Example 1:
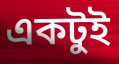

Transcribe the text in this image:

একটুই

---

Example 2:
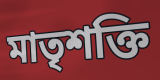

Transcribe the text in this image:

মাতৃশক্তি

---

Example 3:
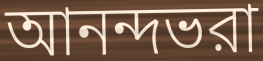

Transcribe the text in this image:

আনন্দভরা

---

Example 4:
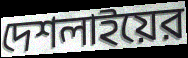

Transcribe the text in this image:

দেশলাইয়ের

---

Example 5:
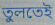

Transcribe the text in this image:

তুলতেই